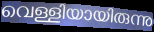
വെള്ളിയായിരുന്നു